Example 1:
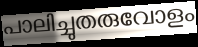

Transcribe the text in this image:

പാലിച്ചുതരുവോളം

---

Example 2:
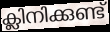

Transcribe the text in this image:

ക്ലിനിക്കുണ്ട്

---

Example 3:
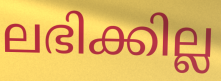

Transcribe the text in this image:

ലഭിക്കില്ല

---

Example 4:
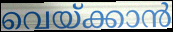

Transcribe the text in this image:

വെയ്ക്കാൻ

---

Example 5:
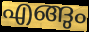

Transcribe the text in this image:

എങ്ങും